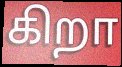
கிறா